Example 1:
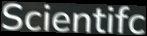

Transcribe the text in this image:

Scientifc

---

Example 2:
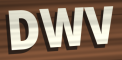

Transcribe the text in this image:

DWV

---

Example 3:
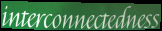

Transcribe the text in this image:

interconnectedness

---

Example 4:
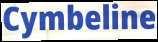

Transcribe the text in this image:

Cymbeline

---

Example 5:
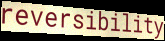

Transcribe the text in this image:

reversibility